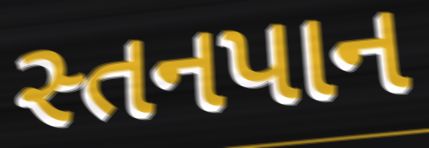
સ્તનપાન